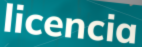
licencia